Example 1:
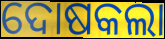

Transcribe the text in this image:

ଦୋଷକଲା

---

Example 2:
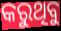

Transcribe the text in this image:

କରୁଥିବୁ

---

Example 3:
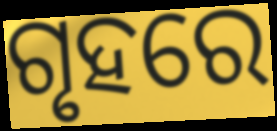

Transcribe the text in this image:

ଗୃହରେ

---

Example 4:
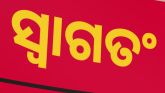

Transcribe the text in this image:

ସ୍ୱାଗତଂ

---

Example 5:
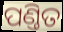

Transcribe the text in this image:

ପଣ୍ତିତ